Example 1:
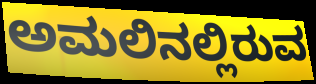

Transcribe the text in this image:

ಅಮಲಿನಲ್ಲಿರುವ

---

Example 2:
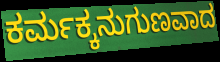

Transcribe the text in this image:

ಕರ್ಮಕ್ಕನುಗುಣವಾದ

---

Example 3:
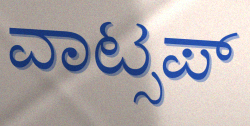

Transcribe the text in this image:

ವಾಟ್ಸಪ್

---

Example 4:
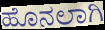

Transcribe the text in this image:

ಹೊನಲಾಗಿ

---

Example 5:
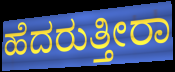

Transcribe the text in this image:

ಹೆದರುತ್ತೀರಾ